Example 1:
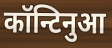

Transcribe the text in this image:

कॉन्टिनुआ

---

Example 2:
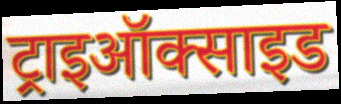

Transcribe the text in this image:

ट्राइऑक्साइड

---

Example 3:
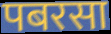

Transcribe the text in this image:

पबरसा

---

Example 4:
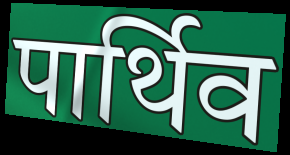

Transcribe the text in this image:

पार्थिव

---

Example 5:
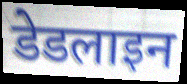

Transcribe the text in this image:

डेडलाइन